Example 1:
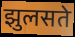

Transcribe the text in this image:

झुलसते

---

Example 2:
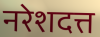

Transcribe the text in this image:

नरेशदत्त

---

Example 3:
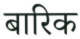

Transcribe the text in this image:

बारिक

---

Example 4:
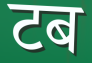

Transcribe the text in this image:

टब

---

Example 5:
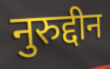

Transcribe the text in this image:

नुरुद्दीन